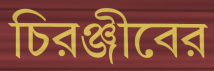
চিরঞ্জীবের